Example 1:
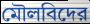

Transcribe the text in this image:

মৌলবিদের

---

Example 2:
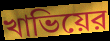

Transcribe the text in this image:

খাভিয়ের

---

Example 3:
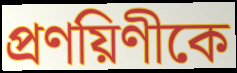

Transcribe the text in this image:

প্রণয়িণীকে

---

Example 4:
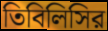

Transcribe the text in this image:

তিবিলিসির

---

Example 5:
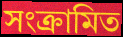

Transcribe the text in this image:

সংক্রামিত